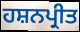
ਹਸ਼ਨਪ੍ਰੀਤ